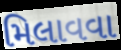
મિલાવવા